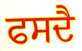
ਫਸਦੈ